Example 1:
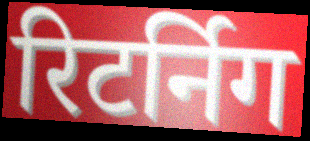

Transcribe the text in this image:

रिटर्निग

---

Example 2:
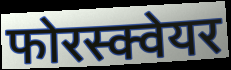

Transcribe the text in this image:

फोरस्क्वेयर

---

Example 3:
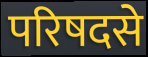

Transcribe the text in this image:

परिषदसे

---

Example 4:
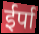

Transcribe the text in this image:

ईर्पा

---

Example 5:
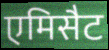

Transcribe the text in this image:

एमिसैट